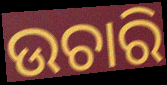
ଉଚାରି